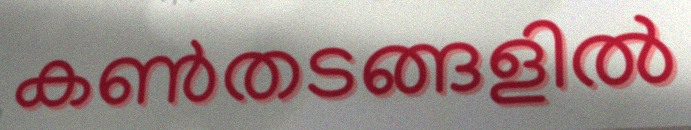
കൺതടങ്ങളിൽ